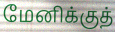
மேனிக்குத்